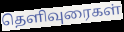
தெளிவுரைகள்